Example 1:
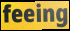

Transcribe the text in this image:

feeing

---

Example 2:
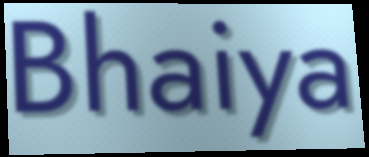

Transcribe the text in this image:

Bhaiya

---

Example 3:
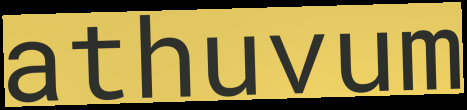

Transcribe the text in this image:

athuvum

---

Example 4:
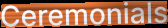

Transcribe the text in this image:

Ceremonials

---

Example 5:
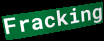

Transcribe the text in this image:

Fracking